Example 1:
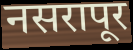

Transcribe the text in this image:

नसरापूर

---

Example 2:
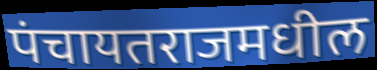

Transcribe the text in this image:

पंचायतराजमधील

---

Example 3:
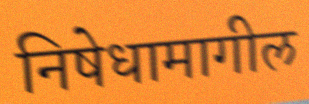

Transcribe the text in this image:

निषेधामागील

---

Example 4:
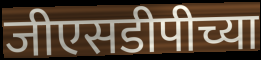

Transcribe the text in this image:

जीएसडीपीच्या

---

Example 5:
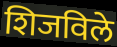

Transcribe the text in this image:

शिजविले